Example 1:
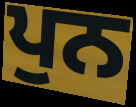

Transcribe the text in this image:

ਪੁਨ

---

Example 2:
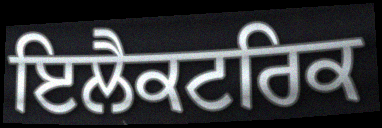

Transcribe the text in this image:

ਇਲੈਕਟਰਿਕ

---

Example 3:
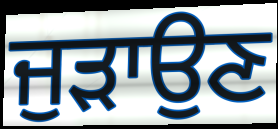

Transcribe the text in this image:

ਜੁੜਾਉਣ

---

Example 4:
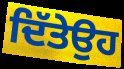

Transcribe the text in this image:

ਦਿੱਤੇਉਹ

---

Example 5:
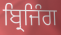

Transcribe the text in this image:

ਬ੍ਰਿਜਿੰਗ